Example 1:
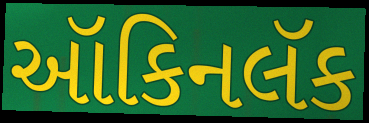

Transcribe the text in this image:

ઑકિનલૅક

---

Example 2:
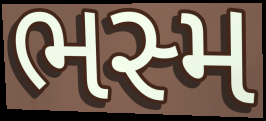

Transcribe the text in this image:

ભસ્મ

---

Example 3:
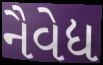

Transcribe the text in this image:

નૈવેદ્ય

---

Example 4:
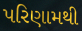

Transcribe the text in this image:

પરિણામથી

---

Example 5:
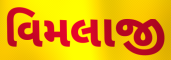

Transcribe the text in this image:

વિમલાજી